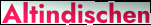
Altindischen